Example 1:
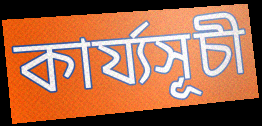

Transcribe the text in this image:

কাৰ্য্যসূচী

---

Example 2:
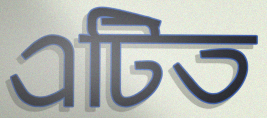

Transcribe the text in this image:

এটিত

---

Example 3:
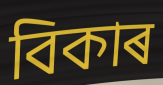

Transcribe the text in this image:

বিকাৰ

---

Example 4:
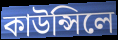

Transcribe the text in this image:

কাউন্সিলে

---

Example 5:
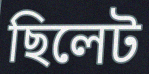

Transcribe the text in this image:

ছিলেট